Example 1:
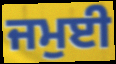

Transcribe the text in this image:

ਜਮੁਈ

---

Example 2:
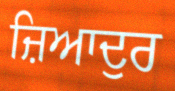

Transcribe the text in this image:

ਜ਼ਿਆਦੁਰ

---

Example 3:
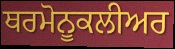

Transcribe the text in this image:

ਥਰਮੋਨੂਕਲੀਅਰ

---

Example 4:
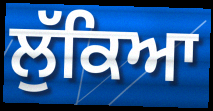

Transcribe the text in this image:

ਲੁੱਕਿਆ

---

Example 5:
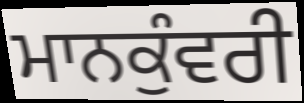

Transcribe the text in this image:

ਮਾਨਕੁੰਵਰੀ